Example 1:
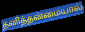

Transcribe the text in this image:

தனித்தன்மையால்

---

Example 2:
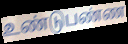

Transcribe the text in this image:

உண்டுபண்ண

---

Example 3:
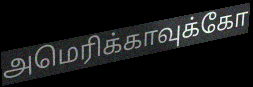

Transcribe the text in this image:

அமெரிக்காவுக்கோ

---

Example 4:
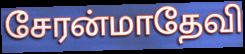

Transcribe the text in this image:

சேரன்மாதேவி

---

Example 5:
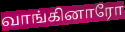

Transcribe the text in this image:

வாங்கினாரோ